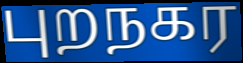
புறநகர